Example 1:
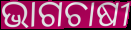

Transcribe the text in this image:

ଭାଗଚାଷୀ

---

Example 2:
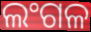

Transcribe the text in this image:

ଲଂଗଳ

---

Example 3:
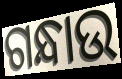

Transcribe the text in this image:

ଗନ୍ଧାଉ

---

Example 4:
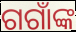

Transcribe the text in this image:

ଗଗାଁଙ୍କ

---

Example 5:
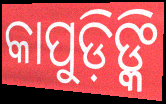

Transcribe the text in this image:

କାପୁଡ଼ିଙ୍କି